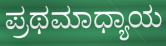
ಪ್ರಥಮಾಧ್ಯಾಯ